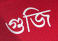
গুজি